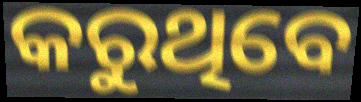
କରୁଥିବେ